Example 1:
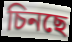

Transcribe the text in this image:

চিনছে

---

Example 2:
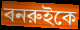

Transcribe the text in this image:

বনরুইকে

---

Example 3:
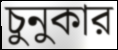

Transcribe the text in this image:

চুনুকার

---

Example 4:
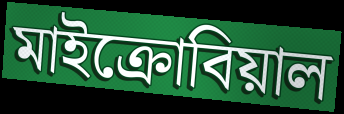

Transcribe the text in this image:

মাইক্রোবিয়াল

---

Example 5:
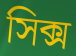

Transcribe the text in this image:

সিক্স